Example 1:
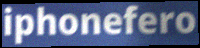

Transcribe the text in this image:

iphonefero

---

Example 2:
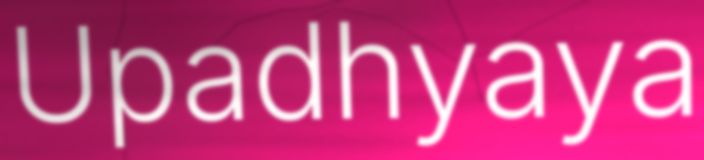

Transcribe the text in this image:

Upadhyaya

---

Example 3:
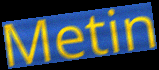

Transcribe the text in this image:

Metin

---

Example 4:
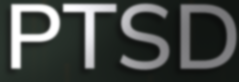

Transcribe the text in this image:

PTSD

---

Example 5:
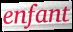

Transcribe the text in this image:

enfant